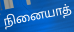
நினையாத்